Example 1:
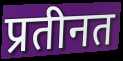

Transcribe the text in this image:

प्रतीनत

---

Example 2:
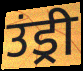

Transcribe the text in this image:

उंड्री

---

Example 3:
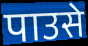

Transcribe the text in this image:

पाउसे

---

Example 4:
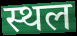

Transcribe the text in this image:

स्‍थल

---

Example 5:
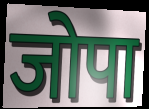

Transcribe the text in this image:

जोपा